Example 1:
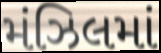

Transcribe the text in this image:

મંઝિલમાં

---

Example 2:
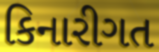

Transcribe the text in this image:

કિનારીગત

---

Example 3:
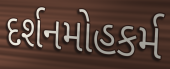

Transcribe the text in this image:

દર્શનમોહકર્મ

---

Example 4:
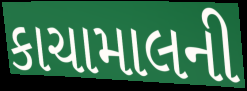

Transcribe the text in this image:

કાચામાલની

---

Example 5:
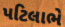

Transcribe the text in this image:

પટિલાભે